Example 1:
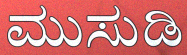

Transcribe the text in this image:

ಮುಸುಡಿ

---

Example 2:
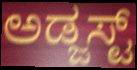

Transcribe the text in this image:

ಅಡ್ಜಸ್ಟ್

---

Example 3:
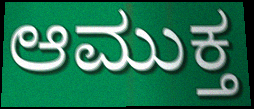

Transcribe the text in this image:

ಆಮುಕ್ತ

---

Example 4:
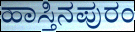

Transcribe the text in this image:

ಹಾಸ್ತಿನಪುರಂ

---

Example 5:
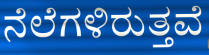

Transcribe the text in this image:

ನೆಲೆಗಳಿರುತ್ತವೆ